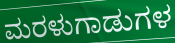
ಮರಳುಗಾಡುಗಳ